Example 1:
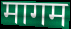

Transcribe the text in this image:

मागम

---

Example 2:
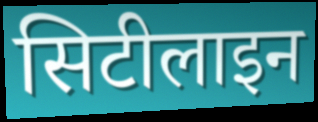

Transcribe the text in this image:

सिटीलाइन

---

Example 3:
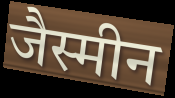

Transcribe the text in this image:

जैस्‍मीन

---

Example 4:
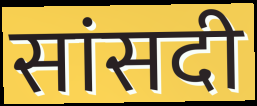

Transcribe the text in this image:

सांसदी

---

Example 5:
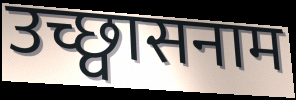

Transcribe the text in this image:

उच्छ्वासनाम